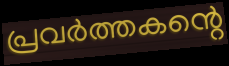
പ്രവർത്തകന്റെ